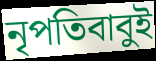
নৃপতিবাবুই